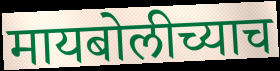
मायबोलीच्याच